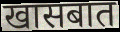
खासबात